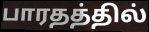
பாரதத்தில்